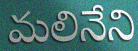
మలినేని